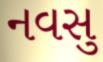
નવસુ